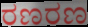
ರಣರಣ